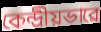
কেন্দ্ৰীয়ভাৱে